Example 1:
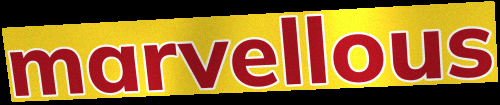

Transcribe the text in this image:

marvellous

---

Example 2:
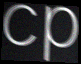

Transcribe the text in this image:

cp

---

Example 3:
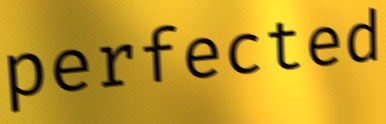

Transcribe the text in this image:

perfected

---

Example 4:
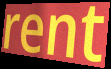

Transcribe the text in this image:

rent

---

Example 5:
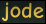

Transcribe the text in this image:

jode